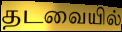
தடவையில்